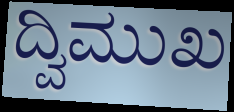
ದ್ವಿಮುಖ